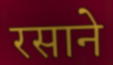
रसाने